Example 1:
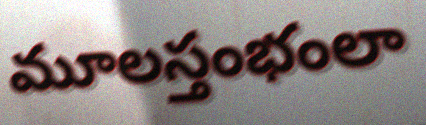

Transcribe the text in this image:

మూలస్తంభంలా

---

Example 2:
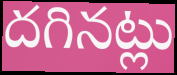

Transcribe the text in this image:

దగినట్లు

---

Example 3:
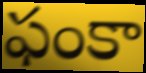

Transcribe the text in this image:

ఫంకా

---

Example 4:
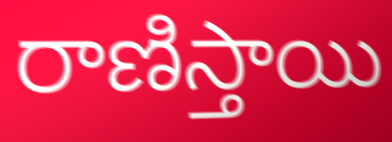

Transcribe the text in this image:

రాణిస్తాయి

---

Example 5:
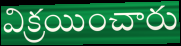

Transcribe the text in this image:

విక్రయించారు